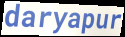
daryapur